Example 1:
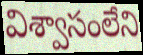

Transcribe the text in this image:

విశ్వాసంలేని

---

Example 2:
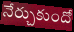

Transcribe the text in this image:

నేర్చుకుందో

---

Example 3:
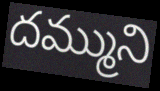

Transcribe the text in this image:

దమ్ముని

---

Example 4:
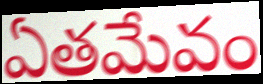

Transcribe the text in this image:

ఏతమేవం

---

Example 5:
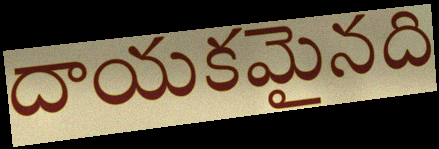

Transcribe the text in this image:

దాయకమైనది